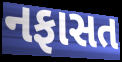
નફાસત